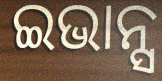
ଇଭାନ୍ସ